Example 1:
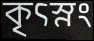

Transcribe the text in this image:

কৃৎস্নং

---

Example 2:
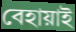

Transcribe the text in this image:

বেহায়াই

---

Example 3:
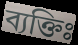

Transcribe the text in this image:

ব্যক্তিঃ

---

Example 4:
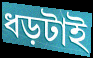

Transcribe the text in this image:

ধড়টাই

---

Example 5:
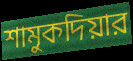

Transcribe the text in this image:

শামুকদিয়ার